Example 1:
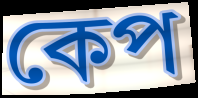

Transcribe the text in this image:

কেপ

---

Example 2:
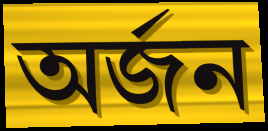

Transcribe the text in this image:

অৰ্জন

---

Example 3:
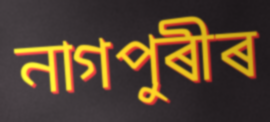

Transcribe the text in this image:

নাগপুৰীৰ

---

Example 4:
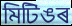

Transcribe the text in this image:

মিটিঙৰ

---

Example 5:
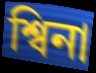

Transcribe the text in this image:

শ্বিনা